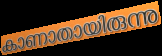
കാണാതായിരുന്നു